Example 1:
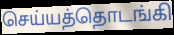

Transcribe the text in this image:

செய்யத்தொடங்கி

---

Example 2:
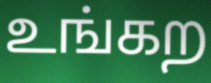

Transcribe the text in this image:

உங்கற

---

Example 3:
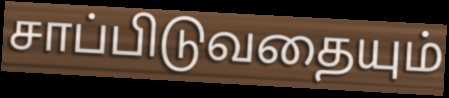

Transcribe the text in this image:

சாப்பிடுவதையும்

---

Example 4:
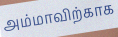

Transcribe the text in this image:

அம்மாவிற்காக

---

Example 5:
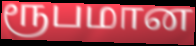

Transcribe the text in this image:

ரூபமான